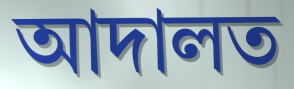
আদালত